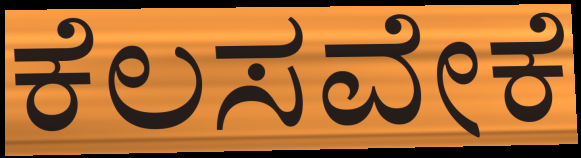
ಕೆಲಸವೇಕೆ